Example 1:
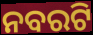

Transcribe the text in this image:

ନବରଟି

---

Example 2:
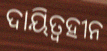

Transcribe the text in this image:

ଦାୟିତ୍ଵହୀନ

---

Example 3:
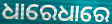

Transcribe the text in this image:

ଧାରେଧାରେ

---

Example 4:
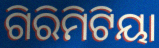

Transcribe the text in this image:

ଗିରିମିଟିୟା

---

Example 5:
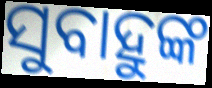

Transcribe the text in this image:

ସୁବାହୁଙ୍କ